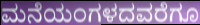
ಮನೆಯಂಗಳದವರೆಗೂ